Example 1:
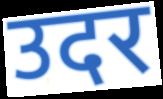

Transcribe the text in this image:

उदर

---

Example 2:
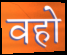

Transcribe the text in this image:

वहो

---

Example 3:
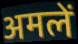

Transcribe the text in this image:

अमलें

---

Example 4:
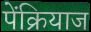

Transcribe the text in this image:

पेंक्रियाज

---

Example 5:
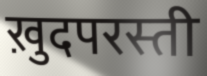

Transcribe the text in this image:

ख़ुदपरस्ती